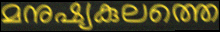
മനുഷ്യകുലത്തെ